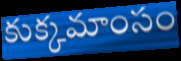
కుక్కమాంసం